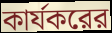
কার্যকরের